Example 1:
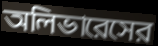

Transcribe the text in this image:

অলিভারেসের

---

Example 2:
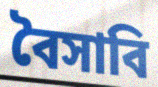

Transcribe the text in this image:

বৈসাবি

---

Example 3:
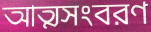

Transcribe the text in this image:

আত্মসংবরণ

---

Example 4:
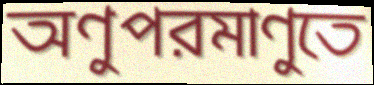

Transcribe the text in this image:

অণুপরমাণুতে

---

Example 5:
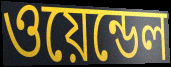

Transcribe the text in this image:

ওয়েন্ডেল